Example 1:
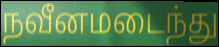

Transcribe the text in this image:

நவீனமடைந்து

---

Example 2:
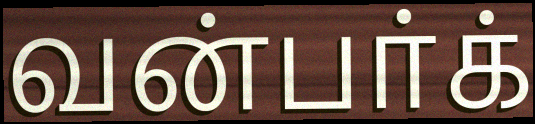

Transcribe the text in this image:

வன்பர்க்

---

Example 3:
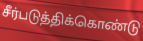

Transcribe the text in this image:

சீர்படுத்திக்கொண்டு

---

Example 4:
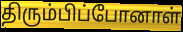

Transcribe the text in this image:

திரும்பிப்போனாள்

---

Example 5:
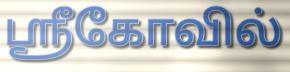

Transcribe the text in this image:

ஸ்ரீகோவில்